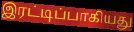
இரட்டிப்பாகியது